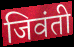
जिवंती